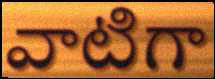
వాటిగా